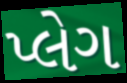
પ્લેગ